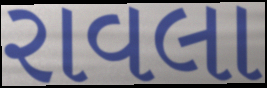
રાવલા